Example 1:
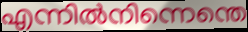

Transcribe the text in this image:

എന്നിൽനിന്നെന്തെ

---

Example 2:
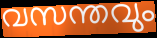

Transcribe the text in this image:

വസന്തവും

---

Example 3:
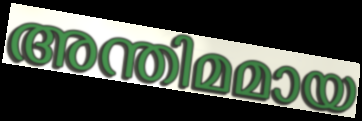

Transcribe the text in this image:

അന്തിമമായ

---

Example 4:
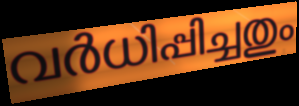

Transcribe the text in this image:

വർധിപ്പിച്ചതും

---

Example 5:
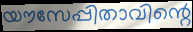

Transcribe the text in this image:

യൗസേപ്പിതാവിന്റെ